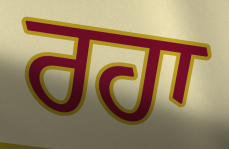
ਰਹਾ